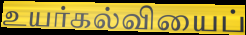
உயர்கல்வியைப்